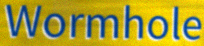
Wormhole